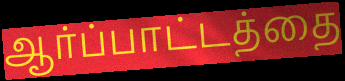
ஆர்ப்பாட்டத்தை